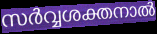
സർവ്വശക്തനാൽ